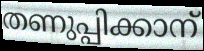
തണുപ്പിക്കാന്